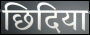
छिदिया